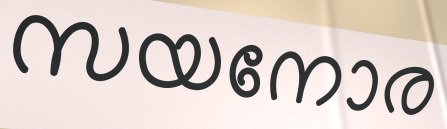
സയനോര